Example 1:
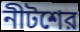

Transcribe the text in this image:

নীটশের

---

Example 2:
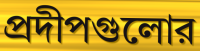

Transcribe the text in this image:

প্রদীপগুলোর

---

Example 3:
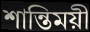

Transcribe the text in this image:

শান্তিময়ী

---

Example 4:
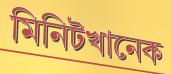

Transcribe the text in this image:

মিনিটখানেক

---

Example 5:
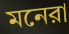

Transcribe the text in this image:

মনেরা